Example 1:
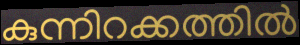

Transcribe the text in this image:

കുന്നിറക്കത്തിൽ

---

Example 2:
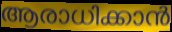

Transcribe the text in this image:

ആരാധിക്കാൻ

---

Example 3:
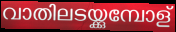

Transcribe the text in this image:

വാതിലടയ്ക്കുമ്പോള്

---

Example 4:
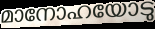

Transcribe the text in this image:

മാനോഹയോടു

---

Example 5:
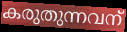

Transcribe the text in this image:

കരുതുന്നവന്